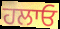
ਹਲਾਓ